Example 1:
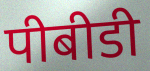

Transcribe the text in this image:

पीबीडी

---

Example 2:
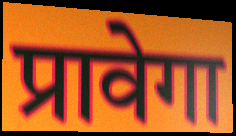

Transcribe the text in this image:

प्रावेगा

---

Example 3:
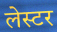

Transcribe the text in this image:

लेस्टर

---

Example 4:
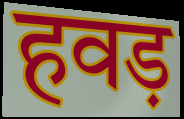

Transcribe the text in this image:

हवड़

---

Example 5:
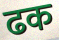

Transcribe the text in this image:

ढक